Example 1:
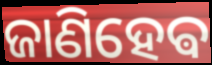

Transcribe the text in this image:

ଜାଣିହେଵ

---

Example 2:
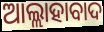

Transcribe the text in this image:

ଆଲ୍ଲାହାବାଦ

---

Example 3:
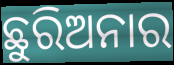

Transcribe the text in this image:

ଛୁରିଅନାର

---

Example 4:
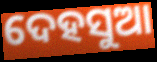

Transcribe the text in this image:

ଦେହସୁଆ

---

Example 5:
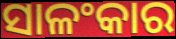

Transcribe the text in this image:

ସାଳଂକାର